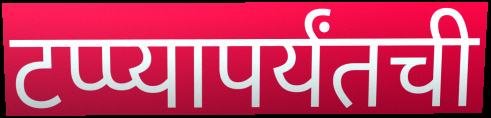
टप्प्यापर्यंतची